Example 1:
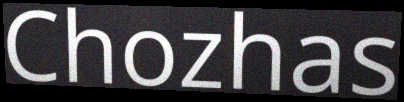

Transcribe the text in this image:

Chozhas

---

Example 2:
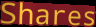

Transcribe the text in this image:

Shares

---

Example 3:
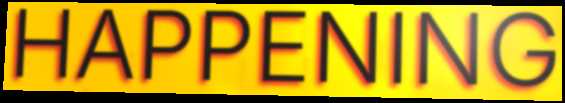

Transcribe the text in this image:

HAPPENING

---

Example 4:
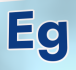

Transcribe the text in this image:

Eg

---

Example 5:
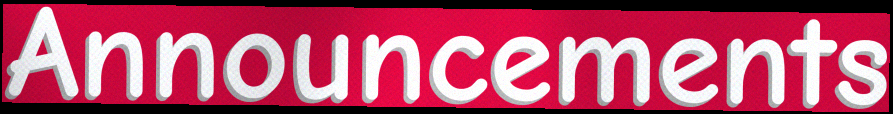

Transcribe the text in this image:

Announcements